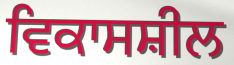
ਵਿਕਾਸਸ਼ੀਲ